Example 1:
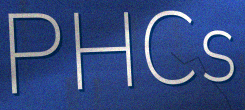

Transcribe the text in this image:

PHCs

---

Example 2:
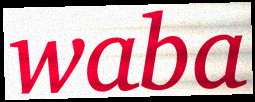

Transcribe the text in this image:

waba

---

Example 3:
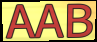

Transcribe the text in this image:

AAB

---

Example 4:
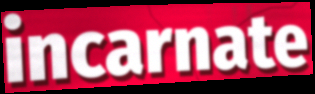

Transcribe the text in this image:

incarnate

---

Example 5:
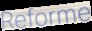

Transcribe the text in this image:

Reforme